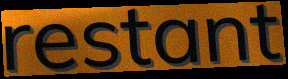
restant